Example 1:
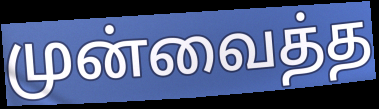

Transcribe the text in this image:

முன்வைத்த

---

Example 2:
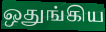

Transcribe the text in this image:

ஒதுங்கிய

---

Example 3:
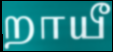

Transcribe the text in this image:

றாயீ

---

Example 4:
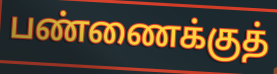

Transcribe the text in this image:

பண்ணைக்குத்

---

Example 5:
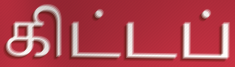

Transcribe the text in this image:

கிட்டப்